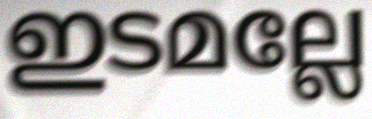
ഇടമല്ലേ